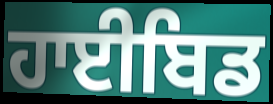
ਹਾਈਬਿਡ